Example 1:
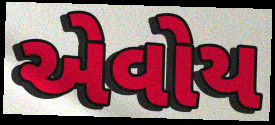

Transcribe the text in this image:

એવોય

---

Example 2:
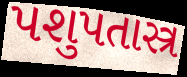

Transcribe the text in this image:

પશુપતાસ્ત્ર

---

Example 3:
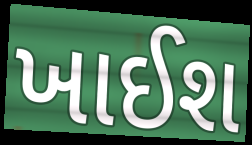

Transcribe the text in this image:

ખાઈશ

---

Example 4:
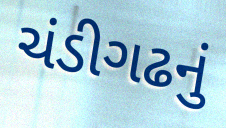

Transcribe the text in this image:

ચંડીગઢનું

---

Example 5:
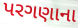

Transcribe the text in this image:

પરગણાના